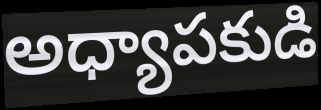
అధ్యాపకుడి